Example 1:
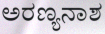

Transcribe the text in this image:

ಅರಣ್ಯನಾಶ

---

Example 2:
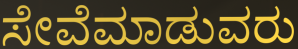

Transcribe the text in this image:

ಸೇವೆಮಾಡುವರು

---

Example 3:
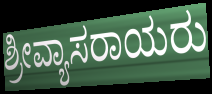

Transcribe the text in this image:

ಶ್ರೀವ್ಯಾಸರಾಯರು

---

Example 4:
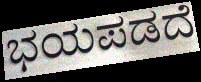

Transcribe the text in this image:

ಭಯಪಡದೆ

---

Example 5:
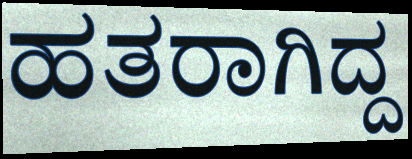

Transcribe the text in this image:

ಹತರಾಗಿದ್ದ